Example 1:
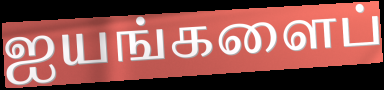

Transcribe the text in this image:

ஐயங்களைப்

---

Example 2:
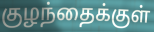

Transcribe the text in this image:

குழந்தைக்குள்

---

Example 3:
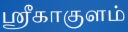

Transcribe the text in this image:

ஸ்ரீகாகுளம்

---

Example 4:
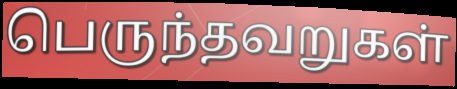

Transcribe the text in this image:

பெருந்தவறுகள்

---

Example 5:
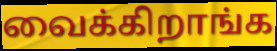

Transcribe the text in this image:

வைக்கிறாங்க